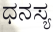
ಧನಸ್ಯ